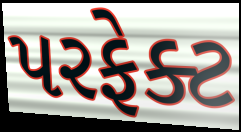
પરફેક્ટ